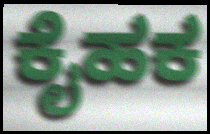
ಕೈಹಕ